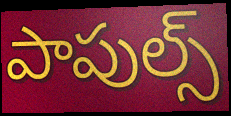
పాపుల్స్